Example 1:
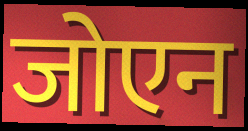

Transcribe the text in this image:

जोएन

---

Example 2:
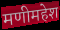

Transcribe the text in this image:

मणीमहेश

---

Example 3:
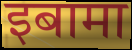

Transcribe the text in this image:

इबामा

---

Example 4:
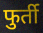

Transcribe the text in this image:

फुर्ती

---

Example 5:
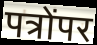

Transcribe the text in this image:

पत्रोंपर